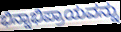
ಭಿನ್ನಾಭಿಪ್ರಾಯವನ್ನು